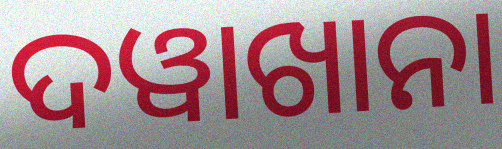
ଦୱାଖାନା